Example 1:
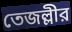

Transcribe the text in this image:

তেজল্লীর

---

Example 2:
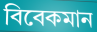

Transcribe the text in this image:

বিবেকমান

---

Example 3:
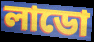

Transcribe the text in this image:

লাডো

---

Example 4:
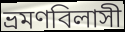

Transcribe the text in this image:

ভ্রমণবিলাসী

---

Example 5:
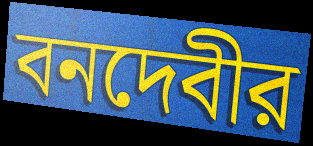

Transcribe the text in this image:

বনদেবীর